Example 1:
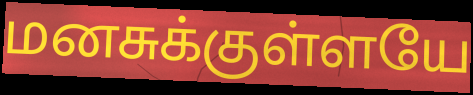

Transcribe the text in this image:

மனசுக்குள்ளயே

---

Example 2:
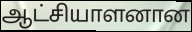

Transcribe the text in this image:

ஆட்சியாளனான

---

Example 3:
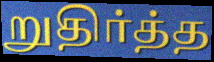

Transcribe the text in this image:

றுதிர்த்த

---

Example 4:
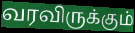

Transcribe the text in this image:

வரவிருக்கும்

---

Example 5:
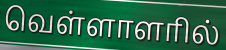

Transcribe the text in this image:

வெள்ளாளரில்